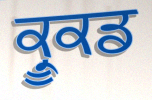
ਕ੍ਰੂਕਡ